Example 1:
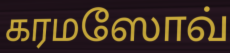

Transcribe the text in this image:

கரமஸோவ்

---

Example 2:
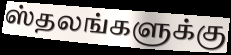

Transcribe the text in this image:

ஸ்தலங்களுக்கு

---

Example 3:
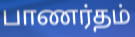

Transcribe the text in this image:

பாணர்தம்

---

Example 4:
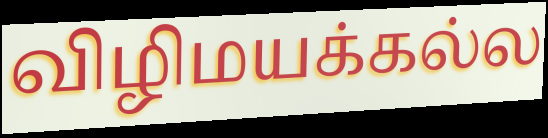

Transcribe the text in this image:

விழிமயக்கல்ல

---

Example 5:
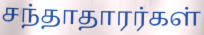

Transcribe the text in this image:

சந்தாதாரர்கள்